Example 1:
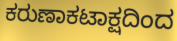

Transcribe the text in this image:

ಕರುಣಾಕಟಾಕ್ಷದಿಂದ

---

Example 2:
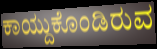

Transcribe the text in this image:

ಕಾಯ್ದುಕೊಂಡಿರುವ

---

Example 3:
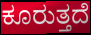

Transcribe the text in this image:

ಕೂರುತ್ತದೆ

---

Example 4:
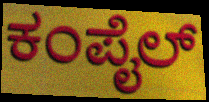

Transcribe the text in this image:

ಕಂಪೈಲ್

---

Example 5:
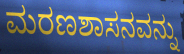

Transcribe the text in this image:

ಮರಣಶಾಸನವನ್ನು